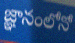
జ్ఞానంలోనో